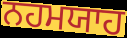
ਨਹਮਯਾਹ